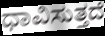
ಧಾವಿಸುತ್ತದೆ